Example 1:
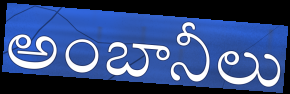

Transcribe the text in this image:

అంబానీలు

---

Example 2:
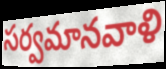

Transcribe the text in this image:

సర్వమానవాళి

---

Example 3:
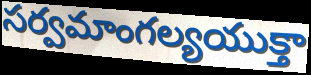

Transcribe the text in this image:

సర్వమాంగల్యయుక్తా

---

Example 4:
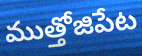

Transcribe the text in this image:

ముత్తోజిపేట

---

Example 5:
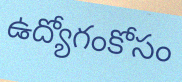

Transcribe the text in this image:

ఉద్యోగంకోసం